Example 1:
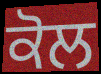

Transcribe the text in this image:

ਕੋਲ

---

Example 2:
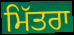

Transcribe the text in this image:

ਮਿੱਤਰਾ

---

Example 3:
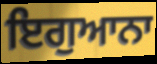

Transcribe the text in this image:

ਇਗੁਆਨਾ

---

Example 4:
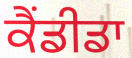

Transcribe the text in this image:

ਕੈਂਡੀਡਾ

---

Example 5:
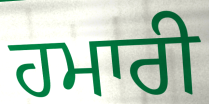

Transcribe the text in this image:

ਹਮਾਰੀ